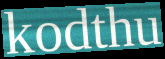
kodthu